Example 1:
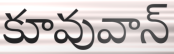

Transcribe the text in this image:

కూవువాన్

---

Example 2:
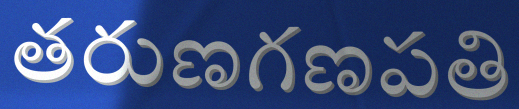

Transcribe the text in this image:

తరుణగణపతి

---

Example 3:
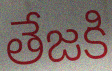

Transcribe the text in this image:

తేజకి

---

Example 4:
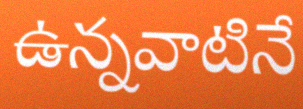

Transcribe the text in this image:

ఉన్నవాటినే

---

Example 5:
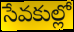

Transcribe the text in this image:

సేవకుల్లో